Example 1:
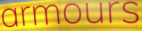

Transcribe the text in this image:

armours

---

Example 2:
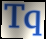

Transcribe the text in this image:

Tq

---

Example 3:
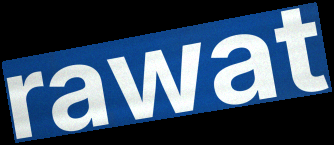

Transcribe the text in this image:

rawat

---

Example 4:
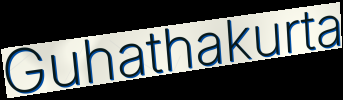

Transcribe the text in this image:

Guhathakurta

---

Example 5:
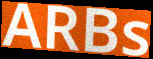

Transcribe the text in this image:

ARBs